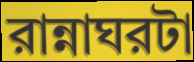
রান্নাঘরটা